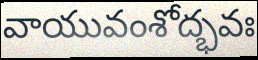
వాయువంశోద్భవః